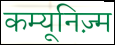
कम्यूनिज़्म